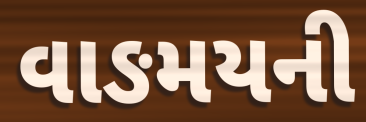
વાઙમયની